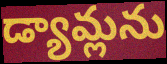
డ్యామ్లను